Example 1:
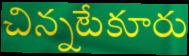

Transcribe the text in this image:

చిన్నటేకూరు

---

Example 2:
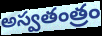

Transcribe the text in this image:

అస్వతంత్రం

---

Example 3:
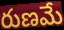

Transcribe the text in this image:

రుణమే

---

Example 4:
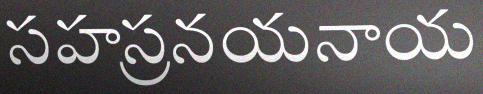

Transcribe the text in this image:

సహస్రనయనాయ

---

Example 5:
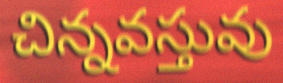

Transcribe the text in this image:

చిన్నవస్తువు